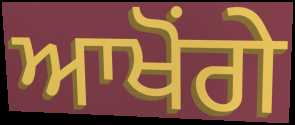
ਆਖੋਂਗੇ